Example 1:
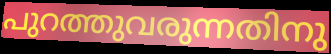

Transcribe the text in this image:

പുറത്തുവരുന്നതിനു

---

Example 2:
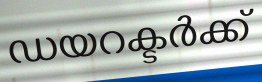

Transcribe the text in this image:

ഡയറക്ടർക്ക്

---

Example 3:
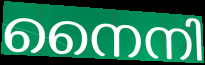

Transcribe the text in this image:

നൈനി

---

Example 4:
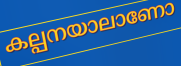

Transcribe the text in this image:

കല്പനയാലാണോ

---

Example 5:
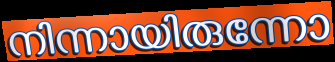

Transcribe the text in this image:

നിന്നായിരുന്നോ